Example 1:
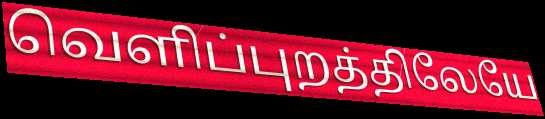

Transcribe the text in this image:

வெளிப்புறத்திலேயே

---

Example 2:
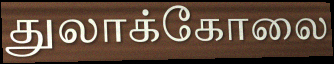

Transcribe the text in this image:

துலாக்கோலை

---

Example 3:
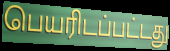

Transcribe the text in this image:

பெயரிடப்பட்டது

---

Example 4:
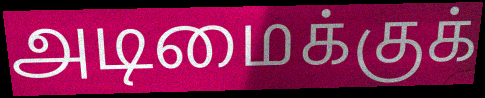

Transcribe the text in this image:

அடிமைக்குக்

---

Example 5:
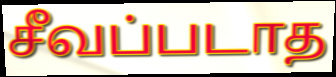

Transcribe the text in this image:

சீவப்படாத